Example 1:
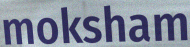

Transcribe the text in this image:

moksham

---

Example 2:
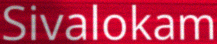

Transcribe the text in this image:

Sivalokam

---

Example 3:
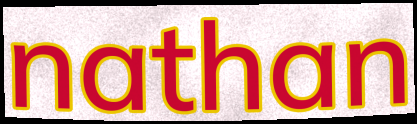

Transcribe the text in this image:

nathan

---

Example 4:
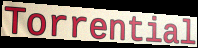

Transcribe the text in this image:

Torrential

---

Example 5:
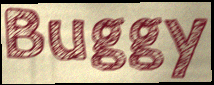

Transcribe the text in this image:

Buggy